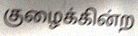
குழைக்கின்ற